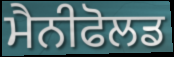
ਮੈਨੀਫੋਲਡ